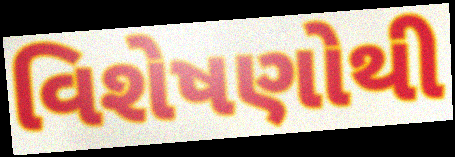
વિશેષણોથી